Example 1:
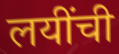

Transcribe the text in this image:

लयींची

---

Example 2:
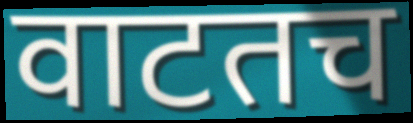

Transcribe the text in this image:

वाटतच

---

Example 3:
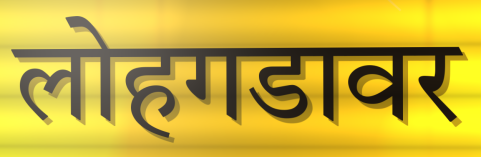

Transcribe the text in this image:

लोहगडावर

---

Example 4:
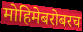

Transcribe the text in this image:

मोहिमेबरोबरच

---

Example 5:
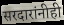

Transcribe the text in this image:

सरदारांनीही